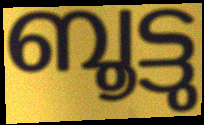
ബൂട്ടു